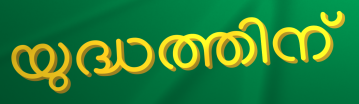
യുദ്ധത്തിന്